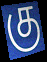
கு